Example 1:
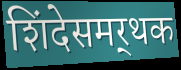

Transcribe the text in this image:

शिंदेसमर्थक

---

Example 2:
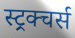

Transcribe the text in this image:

स्ट्रक्चर्स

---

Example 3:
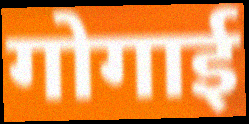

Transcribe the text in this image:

गोगाई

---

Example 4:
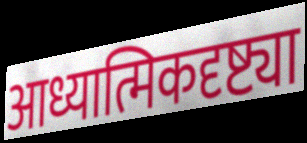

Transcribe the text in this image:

आध्यात्मिकदृष्ट्या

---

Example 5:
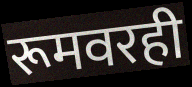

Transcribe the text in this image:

रूमवरही